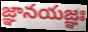
జ్ఞానయజ్ఞః